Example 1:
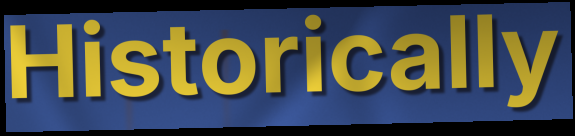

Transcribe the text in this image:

Historically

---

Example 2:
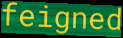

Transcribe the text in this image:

feigned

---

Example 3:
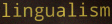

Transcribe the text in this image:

lingualism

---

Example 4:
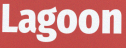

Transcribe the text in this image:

Lagoon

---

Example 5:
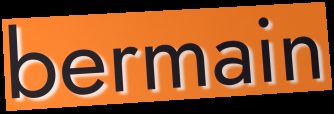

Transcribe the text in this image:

bermain